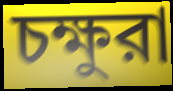
চক্ষুরা